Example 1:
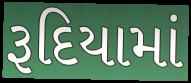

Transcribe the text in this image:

રૂદિયામાં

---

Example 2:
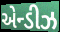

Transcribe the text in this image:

એન્ડીઝ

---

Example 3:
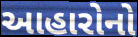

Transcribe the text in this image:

આહારોનો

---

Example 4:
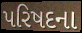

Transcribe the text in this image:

પરિષદના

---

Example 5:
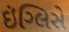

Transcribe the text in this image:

ઇંગ્લિસે